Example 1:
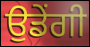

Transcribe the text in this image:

ਉਡੇਂਗੀ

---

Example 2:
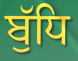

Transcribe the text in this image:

ਬੁੱਧਿ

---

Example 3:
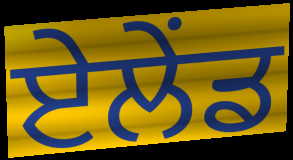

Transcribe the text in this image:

ਏਲੇਂਡ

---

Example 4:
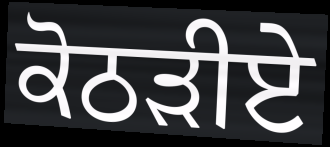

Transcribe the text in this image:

ਕੋਠੜੀਏ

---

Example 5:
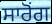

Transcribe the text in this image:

ਸਾਰੋਂਗ